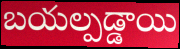
బయల్పడ్డాయి